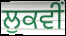
ਲੁਕਵੀਂ